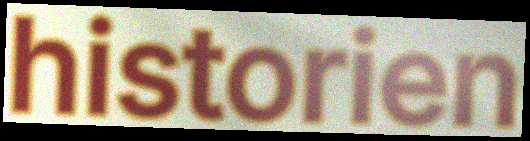
historien